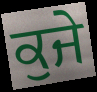
ਕੁਜੇ